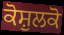
ਕੋਸ਼ੁਲਕੋ